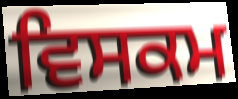
ਵਿਸਕਮ